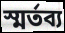
স্মৰ্তব্য